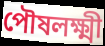
পৌষলক্ষ্মী